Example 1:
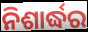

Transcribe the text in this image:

ନିଶାର୍ଦ୍ଧର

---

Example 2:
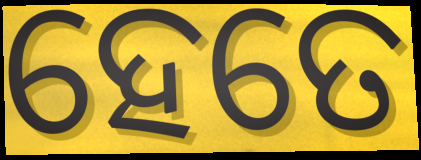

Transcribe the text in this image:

ହେତେ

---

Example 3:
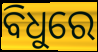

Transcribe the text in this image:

ବିଧୁରେ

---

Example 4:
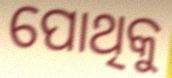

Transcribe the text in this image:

ପୋଥିକୁ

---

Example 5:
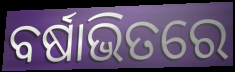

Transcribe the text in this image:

ବର୍ଷାଭିତରେ